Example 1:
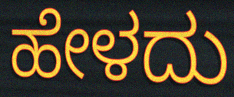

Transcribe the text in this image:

ಹೇಳದು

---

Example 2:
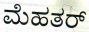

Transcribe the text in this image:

ಮೆಹತರ್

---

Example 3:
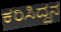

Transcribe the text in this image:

ಕರಿಸಿದ್ದನ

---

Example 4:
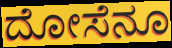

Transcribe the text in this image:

ದೋಸೆನೂ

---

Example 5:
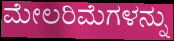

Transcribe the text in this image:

ಮೇಲರಿಮೆಗಳನ್ನು